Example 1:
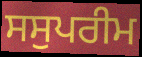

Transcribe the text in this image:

ਸਸੁਪਰੀਮ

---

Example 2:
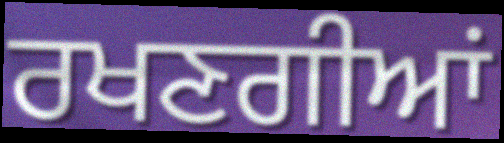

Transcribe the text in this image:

ਰਖਣਗੀਆਂ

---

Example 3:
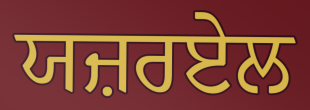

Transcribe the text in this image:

ਯਜ਼ਰਏਲ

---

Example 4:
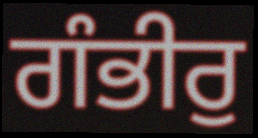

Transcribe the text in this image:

ਗੰਭੀਰੁ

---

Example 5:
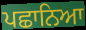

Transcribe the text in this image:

ਪਛਾਨਿਆ